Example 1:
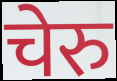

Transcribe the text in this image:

चेरु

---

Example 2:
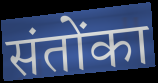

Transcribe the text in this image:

संतोंका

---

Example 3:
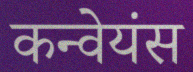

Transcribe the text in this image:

कन्वेयंस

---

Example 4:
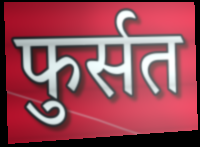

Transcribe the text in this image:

फुर्सत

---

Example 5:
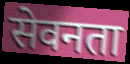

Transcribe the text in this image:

सेवनता